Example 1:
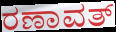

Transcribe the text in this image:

ರಣಾವತ್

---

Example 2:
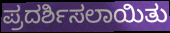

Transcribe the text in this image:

ಪ್ರದರ್ಶಿಸಲಾಯಿತು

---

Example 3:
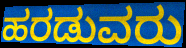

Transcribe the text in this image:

ಹರಡುವರು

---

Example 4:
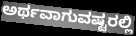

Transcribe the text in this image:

ಅರ್ಥವಾಗುವಷ್ಟರಲ್ಲಿ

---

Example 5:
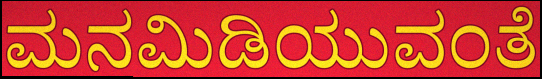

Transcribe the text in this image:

ಮನಮಿಡಿಯುವಂತೆ